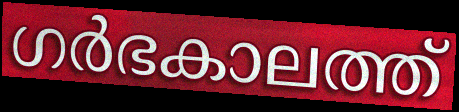
ഗർഭകാലത്ത്